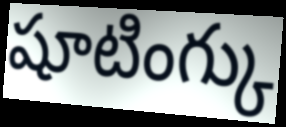
షూటింగ్కు